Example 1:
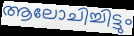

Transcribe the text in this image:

ആലോചിച്ചിട്ടും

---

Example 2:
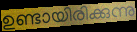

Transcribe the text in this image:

ഉണ്ടായിരിക്കുന്നു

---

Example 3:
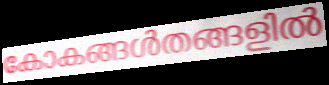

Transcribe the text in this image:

കോകങ്ങൾതങ്ങളിൽ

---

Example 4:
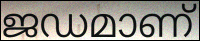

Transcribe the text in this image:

ജഡമാണ്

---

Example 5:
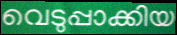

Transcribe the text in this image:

വെടുപ്പാക്കിയ